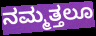
ನಮ್ಮತ್ತಲೂ